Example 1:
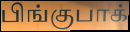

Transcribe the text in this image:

பிங்குபாக்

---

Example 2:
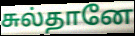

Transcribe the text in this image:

சுல்தானே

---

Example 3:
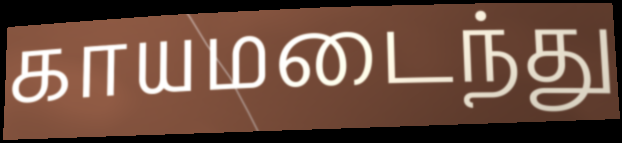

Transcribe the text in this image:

காயமடைந்து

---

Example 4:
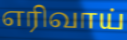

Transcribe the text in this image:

எரிவாய்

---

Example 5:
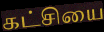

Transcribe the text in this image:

கட்சியை